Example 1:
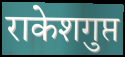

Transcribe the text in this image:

राकेशगुप्त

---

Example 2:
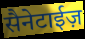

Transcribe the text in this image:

सैनेटाईज़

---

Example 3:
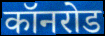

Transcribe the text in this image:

कॉनरोड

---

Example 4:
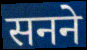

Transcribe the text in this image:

सनने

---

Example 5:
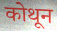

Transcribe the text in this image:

कोथून